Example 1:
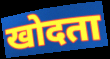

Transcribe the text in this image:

खोदता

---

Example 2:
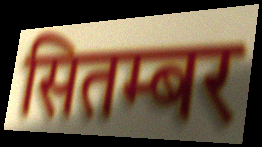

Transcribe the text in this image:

सितम्‍बर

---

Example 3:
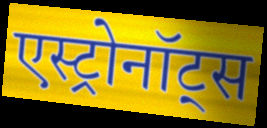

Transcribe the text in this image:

एस्ट्रोनॉट्स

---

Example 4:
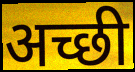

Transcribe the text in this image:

अच्छी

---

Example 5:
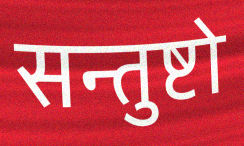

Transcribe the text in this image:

सन्तुष्टो